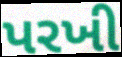
પરખી